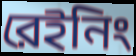
রেইনিং